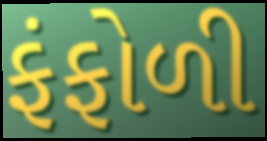
ફંફોળી